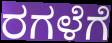
ರಗಳೆಗೆ